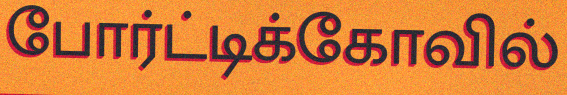
போர்ட்டிக்கோவில்